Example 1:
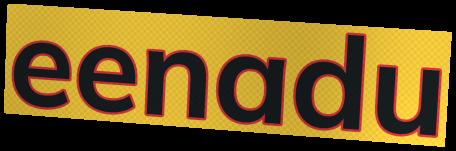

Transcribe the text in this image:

eenadu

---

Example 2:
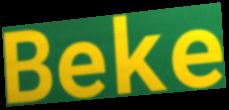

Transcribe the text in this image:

Beke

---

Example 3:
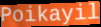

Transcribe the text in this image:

Poikayil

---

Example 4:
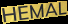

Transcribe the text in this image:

HEMAL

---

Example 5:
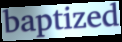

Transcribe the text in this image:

baptized